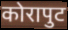
कोरापुट